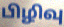
பிழிவு